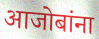
आजोबांना